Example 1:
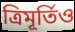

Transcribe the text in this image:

ত্ৰিমূৰ্তিও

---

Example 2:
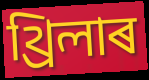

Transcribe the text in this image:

থ্ৰিলাৰ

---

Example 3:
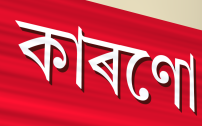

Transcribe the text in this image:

কাৰণো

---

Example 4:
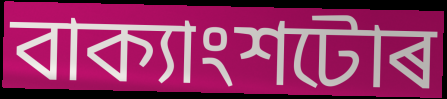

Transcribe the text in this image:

বাক্যাংশটোৰ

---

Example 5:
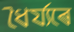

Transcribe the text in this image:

ধৈৰ্য্যৰে